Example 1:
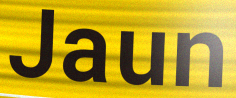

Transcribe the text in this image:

Jaun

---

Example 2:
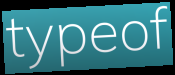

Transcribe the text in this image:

typeof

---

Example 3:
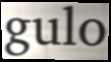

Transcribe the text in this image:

gulo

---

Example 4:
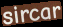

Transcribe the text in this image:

sircar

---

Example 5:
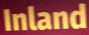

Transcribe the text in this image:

Inland